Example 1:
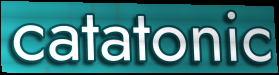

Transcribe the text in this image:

catatonic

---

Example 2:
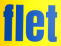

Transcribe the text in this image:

flet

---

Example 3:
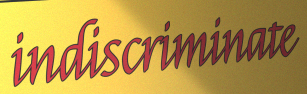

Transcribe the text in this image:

indiscriminate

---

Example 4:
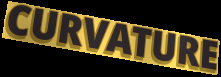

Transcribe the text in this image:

CURVATURE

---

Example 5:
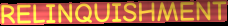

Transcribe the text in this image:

RELINQUISHMENT